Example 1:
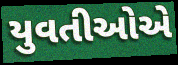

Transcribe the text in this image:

યુવતીઓએ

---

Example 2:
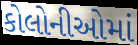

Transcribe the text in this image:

કોલોનીઓમાં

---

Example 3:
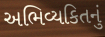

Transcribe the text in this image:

અભિવ્યકિતનું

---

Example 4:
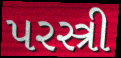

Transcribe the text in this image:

પરસ્ત્રી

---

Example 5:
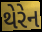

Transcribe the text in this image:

થેરેન